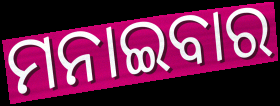
ମନାଇବାର